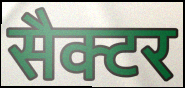
सैक्टर